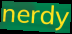
nerdy